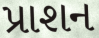
પ્રાશન